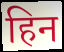
हिन